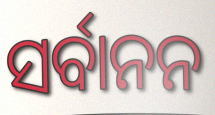
ସର୍ବାନନ